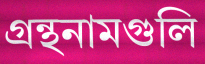
গ্রন্থনামগুলি